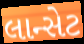
લાન્સેટ